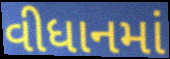
વીધાનમાં